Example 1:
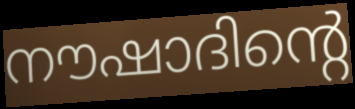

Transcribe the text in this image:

നൗഷാദിന്റെ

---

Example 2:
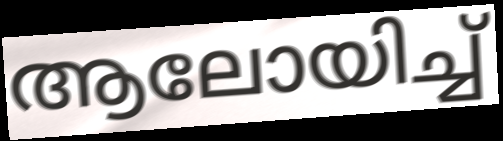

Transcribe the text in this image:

ആലോയിച്ച്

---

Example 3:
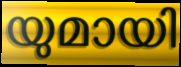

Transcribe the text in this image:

യുമായി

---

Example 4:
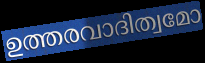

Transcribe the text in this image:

ഉത്തരവാദിത്വമോ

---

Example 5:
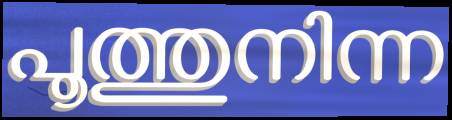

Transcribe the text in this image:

പൂത്തുനിന്ന